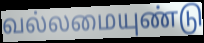
வல்லமையுண்டு